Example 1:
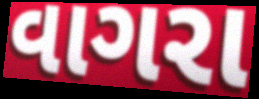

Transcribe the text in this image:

વાગરા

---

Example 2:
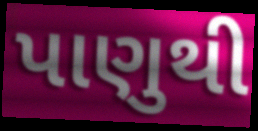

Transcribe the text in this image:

પાણુથી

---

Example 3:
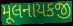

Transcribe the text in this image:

મૂલનાયકજી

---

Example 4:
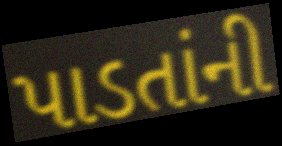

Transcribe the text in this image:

પાડતાંની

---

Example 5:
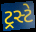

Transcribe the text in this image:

ટ્રસ્ટે